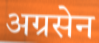
अग्रसेन